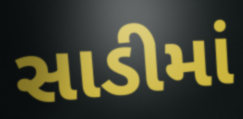
સાડીમાં